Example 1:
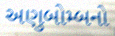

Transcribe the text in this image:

અણુબોમ્બનો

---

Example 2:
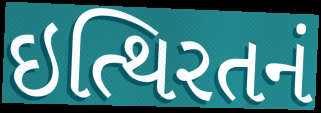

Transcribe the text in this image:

ઇત્થિરતનં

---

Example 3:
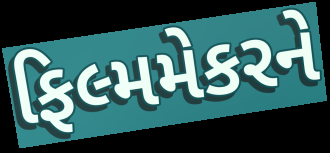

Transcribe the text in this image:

ફિલ્મમેકરને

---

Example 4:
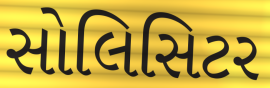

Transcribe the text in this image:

સોલિસિટર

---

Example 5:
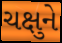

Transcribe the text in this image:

ચક્ષુને